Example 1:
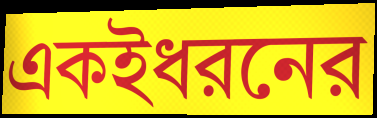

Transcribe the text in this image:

একইধরনের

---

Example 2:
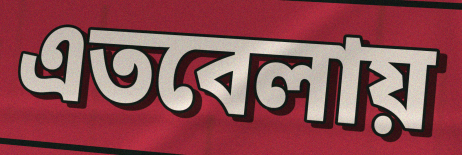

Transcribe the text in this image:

এতবেলায়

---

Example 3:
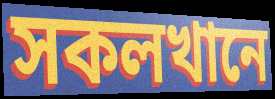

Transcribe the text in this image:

সকলখানে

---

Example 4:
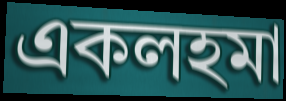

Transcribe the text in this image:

একলহমা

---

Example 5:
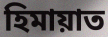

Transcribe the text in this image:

হিমায়াত